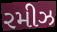
રમીઝ